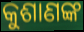
କୁଶାଣଙ୍କ